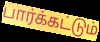
பார்க்கட்டும்